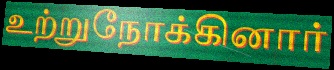
உற்றுநோக்கினார்